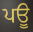
ਪਊ